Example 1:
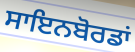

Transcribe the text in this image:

ਸਾਇਨਬੋਰਡਾਂ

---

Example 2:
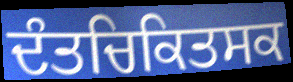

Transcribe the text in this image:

ਦੰਤਚਿਕਿਤਸਕ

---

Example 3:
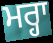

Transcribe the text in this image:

ਮਰ੍ਹਾ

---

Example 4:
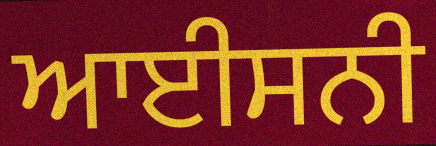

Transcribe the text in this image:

ਆਈਸਨੀ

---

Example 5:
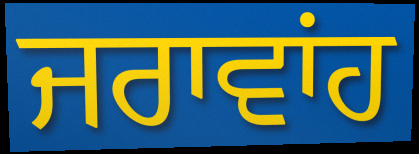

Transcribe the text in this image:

ਜਰਾਵਾਂਹ